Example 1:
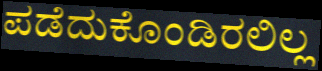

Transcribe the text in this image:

ಪಡೆದುಕೊಂಡಿರಲಿಲ್ಲ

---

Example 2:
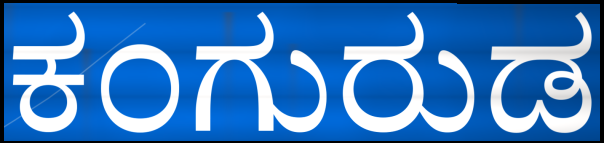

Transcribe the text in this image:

ಕಂಗುರುಡ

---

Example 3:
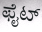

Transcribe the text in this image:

ಫೈಟ್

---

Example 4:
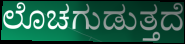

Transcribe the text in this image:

ಲೊಚಗುಡುತ್ತದೆ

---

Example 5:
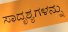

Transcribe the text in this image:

ಸಾದೃಶ್ಯಗಳನ್ನು